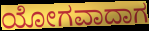
ಯೋಗವಾದಾಗ